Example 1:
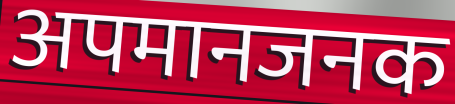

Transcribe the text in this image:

अपमानजनक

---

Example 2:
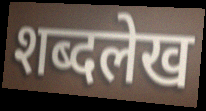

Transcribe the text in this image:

शब्दलेख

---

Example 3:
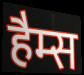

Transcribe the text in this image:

हैम्स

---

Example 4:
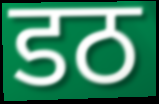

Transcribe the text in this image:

डठ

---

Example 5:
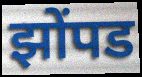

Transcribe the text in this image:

झोंपड